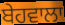
ਬੇਹਵਾਲਾ